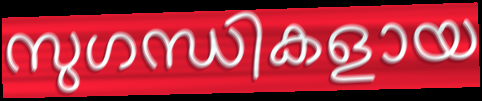
സുഗന്ധികളായ